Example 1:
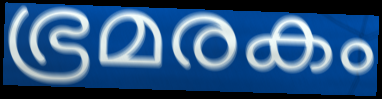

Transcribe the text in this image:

ഭ്രമരകം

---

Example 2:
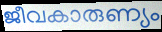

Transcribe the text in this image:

ജീവകാരുണ്യം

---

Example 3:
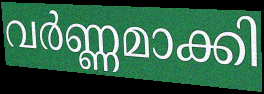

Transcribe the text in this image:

വർണ്ണമാക്കി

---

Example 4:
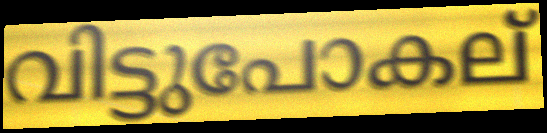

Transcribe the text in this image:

വിട്ടുപോകല്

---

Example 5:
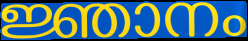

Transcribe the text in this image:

ജ്ഞാനം